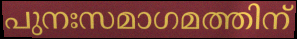
പുനഃസമാഗമത്തിന്